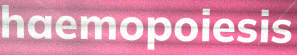
haemopoiesis